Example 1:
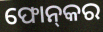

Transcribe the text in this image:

ଫୋନ୍‌କର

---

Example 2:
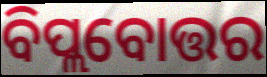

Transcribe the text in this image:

ବିପ୍ଲବୋତ୍ତର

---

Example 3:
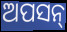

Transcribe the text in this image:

ଅପସନ୍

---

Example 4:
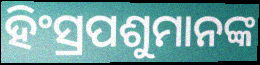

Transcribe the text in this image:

ହିଂସ୍ରପଶୁମାନଙ୍କ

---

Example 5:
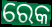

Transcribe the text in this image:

ରେକ